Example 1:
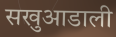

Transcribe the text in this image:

सखुआडाली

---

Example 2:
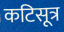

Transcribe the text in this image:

कटिसूत्र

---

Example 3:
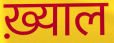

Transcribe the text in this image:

ख़्याल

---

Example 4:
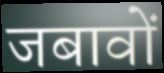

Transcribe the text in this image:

जबावों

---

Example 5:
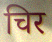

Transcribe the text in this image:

चिर